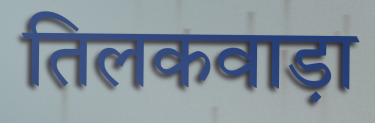
तिलकवाड़ा